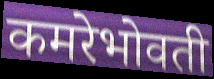
कमरेभोवती